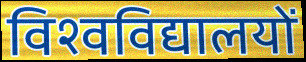
विश्वविद्यालयों